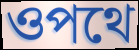
ওপথে